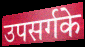
उपसर्गके